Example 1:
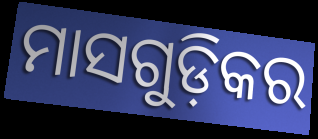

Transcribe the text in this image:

ମାସଗୁଡ଼ିକର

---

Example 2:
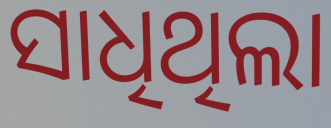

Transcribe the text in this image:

ସାଧିଥିଲା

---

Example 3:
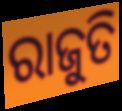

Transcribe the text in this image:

ରାଜୁତି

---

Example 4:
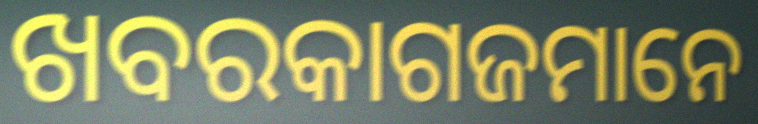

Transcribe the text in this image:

ଖବରକାଗଜମାନେ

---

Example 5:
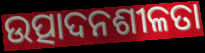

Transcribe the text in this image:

ଉତ୍ପାଦନଶୀଳତା